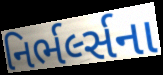
નિર્ભર્લ્સના